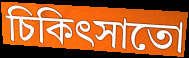
চিকিৎসাতো